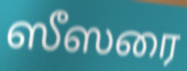
ஸீஸரை